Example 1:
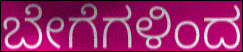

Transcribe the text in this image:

ಬೇಗೆಗಳಿಂದ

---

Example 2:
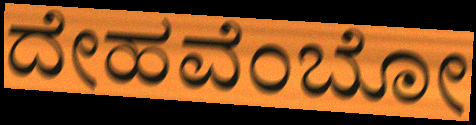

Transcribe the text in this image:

ದೇಹವೆಂಬೋ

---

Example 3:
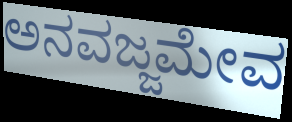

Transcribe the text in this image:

ಅನವಜ್ಜಮೇವ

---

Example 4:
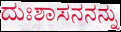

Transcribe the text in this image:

ದುಃಶಾಸನನನ್ನು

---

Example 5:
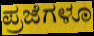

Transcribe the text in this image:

ಪ್ರಜೆಗಳೂ